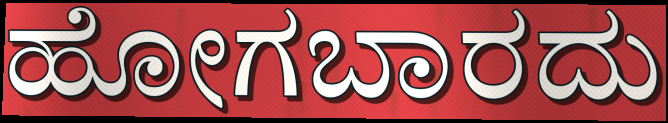
ಹೋಗಬಾರದು